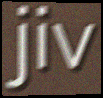
jiv